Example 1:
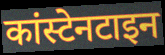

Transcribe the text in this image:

कांस्टेनटाइन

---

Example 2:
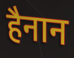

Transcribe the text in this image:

हैनान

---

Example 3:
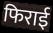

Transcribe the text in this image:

फिराई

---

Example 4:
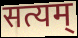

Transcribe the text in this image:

सत्यम्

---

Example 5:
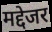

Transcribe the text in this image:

मद्देजर